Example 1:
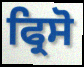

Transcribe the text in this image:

ਫ੍ਰਿਸੋ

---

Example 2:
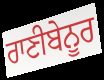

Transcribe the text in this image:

ਰਾਣੀਬੇਨੂਰ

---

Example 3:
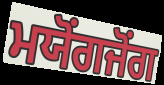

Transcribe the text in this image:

ਮਯੋਂਗਜੋਂਗ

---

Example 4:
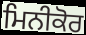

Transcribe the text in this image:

ਮਿਨੀਕੋਰ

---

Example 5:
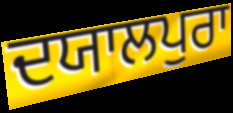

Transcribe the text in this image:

ਦਯਾਲਪੁਰਾ